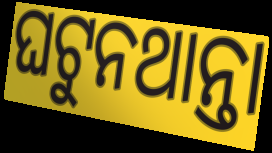
ଘଟୁନଥାନ୍ତା